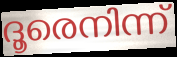
ദൂരെനിന്ന്